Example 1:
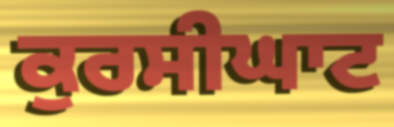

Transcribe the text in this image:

ਕੁਰਸੀਘਾਟ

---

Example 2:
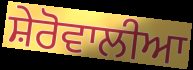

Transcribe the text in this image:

ਸ਼ੇਰੋਵਾਲੀਆ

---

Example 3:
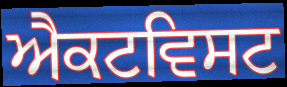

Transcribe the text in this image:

ਐਕਟਵਿਸਟ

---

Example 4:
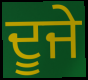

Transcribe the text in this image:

ਦੂਜੇ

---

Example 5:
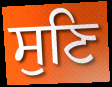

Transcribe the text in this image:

ਸੁਣਿ